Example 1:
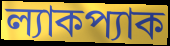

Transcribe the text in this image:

ল্যাকপ্যাক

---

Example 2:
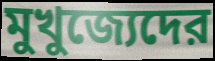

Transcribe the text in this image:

মুখুজ্যেদের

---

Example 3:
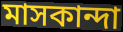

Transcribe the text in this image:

মাসকান্দা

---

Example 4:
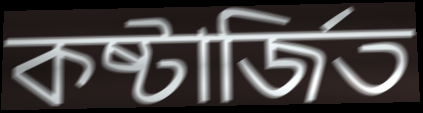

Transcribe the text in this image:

কষ্টার্জিত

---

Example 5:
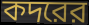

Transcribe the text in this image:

কদরের